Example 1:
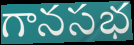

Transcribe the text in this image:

గానసభ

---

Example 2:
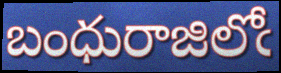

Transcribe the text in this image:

బంధురాజిలోఁ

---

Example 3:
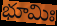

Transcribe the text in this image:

భూమిః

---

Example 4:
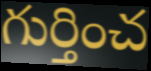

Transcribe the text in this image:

గుర్తించ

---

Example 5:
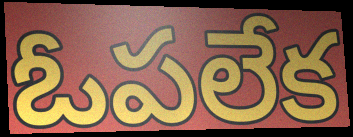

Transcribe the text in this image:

ఓపలేక